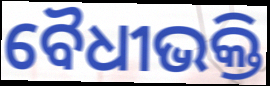
ବୈଧୀଭକ୍ତି